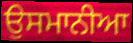
ਉਸਮਾਨੀਆ